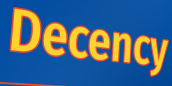
Decency